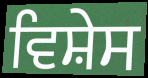
ਵਿਸ਼ੇਸ